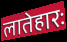
लातेहारः